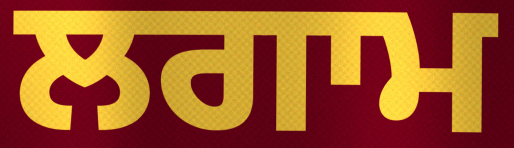
ਲਗਾਮ